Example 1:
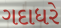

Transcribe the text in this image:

ગદાધરે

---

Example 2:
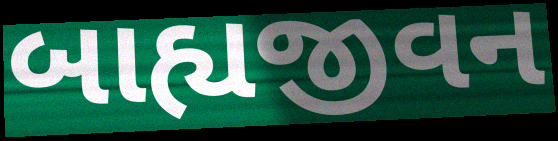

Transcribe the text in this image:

બાહ્યજીવન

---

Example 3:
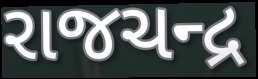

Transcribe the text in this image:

રાજચન્દ્ર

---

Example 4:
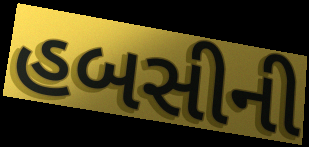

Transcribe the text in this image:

હબસીની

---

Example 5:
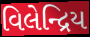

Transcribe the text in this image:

વિલેન્દ્રિય